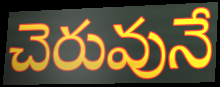
చెరువునే